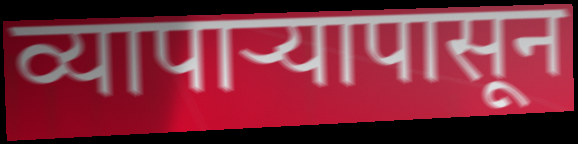
व्यापाऱ्यापासून